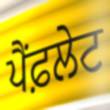
ਪੈਂਫ਼ਲੇਟ